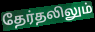
தேர்தலிலும்